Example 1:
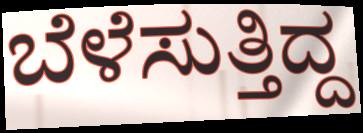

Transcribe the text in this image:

ಬೆಳೆಸುತ್ತಿದ್ದ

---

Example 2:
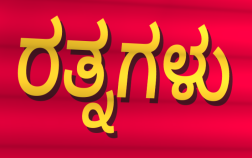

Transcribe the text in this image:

ರತ್ನಗಳು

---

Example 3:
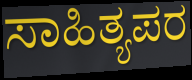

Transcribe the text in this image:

ಸಾಹಿತ್ಯಪರ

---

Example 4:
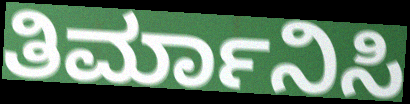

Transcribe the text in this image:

ತಿರ್ಮಾನಿಸಿ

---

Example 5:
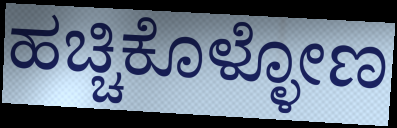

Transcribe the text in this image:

ಹಚ್ಚಿಕೊಳ್ಳೋಣ